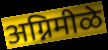
अग्निमीळे